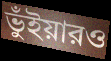
ভুঁইয়ারও